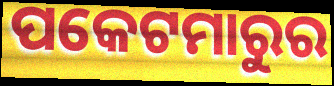
ପକେଟମାରୁର